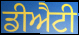
ਡੀਐਟੀ